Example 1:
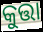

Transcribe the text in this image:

କୁତ୍ତା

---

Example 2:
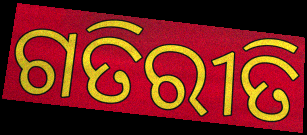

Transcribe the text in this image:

ଗତିରୀତି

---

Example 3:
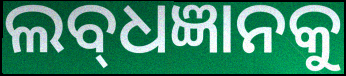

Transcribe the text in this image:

ଲବ୍‌ଧଜ୍ଞାନକୁ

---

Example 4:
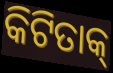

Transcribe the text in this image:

କିଟିତାକ୍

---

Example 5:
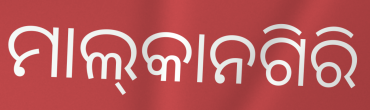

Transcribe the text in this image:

ମାଲ୍‌କାନଗିରି